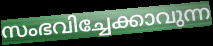
സംഭവിച്ചേക്കാവുന്ന